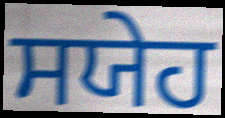
ਸਯੇਹ